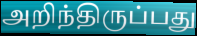
அறிந்திருப்பது